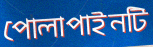
পোলাপাইনটি